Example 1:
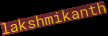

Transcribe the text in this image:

lakshmikanth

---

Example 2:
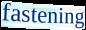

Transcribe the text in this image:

fastening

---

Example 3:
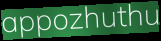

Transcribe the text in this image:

appozhuthu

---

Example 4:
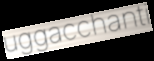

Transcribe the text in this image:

uggacchanti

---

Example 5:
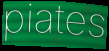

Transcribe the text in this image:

piates